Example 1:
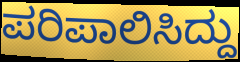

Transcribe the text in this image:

ಪರಿಪಾಲಿಸಿದ್ದು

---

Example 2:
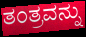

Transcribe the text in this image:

ತಂತ್ರವನ್ನು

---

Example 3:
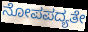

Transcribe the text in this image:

ನೋಪಪದ್ಯತೇ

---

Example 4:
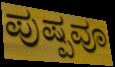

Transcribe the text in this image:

ಪುಷ್ಪವೂ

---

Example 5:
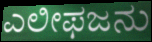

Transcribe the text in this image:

ಎಲೀಫಜನು